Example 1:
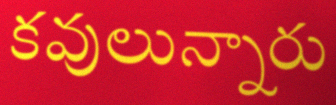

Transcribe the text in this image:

కవులున్నారు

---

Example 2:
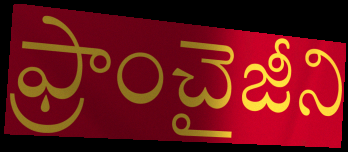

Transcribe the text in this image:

ఫ్రాంచైజీని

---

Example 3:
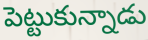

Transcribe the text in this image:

పెట్టుకున్నాడు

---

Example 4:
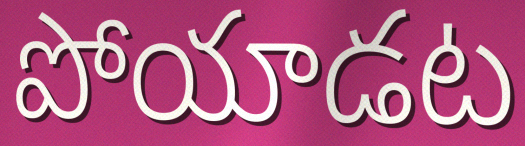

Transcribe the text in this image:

పోయాడట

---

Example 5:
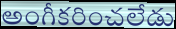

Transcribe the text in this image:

అంగీకరించలేడు